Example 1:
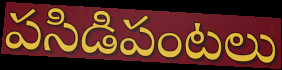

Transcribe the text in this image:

పసిడిపంటలు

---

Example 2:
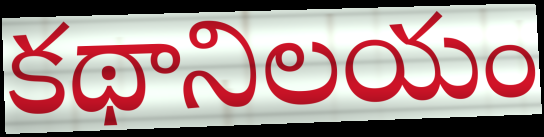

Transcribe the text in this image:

కథానిలయం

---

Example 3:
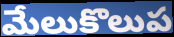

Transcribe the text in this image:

మేలుకొలుప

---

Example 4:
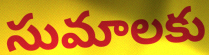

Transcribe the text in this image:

సుమాలకు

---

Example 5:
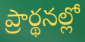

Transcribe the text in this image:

ప్రార్థనల్లో